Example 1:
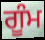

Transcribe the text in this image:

ਗੂੰਮ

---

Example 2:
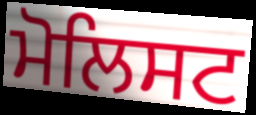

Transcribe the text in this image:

ਮੋਲਿਸਟ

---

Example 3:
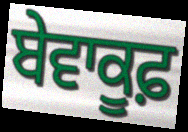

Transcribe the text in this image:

ਬੇਵਾਕੂਫ਼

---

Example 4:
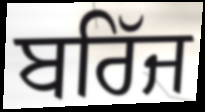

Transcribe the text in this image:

ਬਰਿੱਜ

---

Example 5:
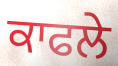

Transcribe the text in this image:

ਕਾਫਲੇ